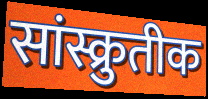
सांस्क्रुतीक